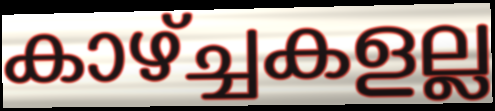
കാഴ്ച്ചകളല്ല